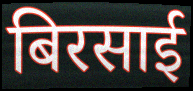
बिरसाई